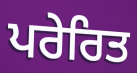
ਪਰੇਰਿਤ